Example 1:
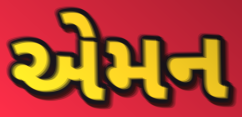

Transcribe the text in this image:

એમન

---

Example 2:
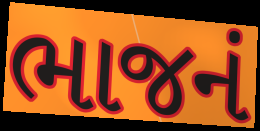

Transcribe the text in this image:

ભાજનં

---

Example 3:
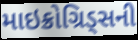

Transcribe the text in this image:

માઇક્રોગ્રિડ્સની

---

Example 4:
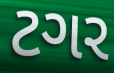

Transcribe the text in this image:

ટગર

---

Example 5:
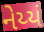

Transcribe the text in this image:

નેય્યં